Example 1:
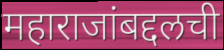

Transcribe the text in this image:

महाराजांबद्दलची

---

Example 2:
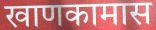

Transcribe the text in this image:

खाणकामास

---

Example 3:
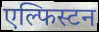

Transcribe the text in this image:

एल्फिस्टन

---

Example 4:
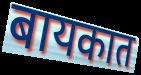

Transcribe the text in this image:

बायकात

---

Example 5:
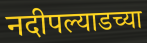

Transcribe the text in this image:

नदीपल्याडच्या